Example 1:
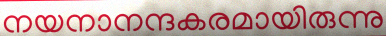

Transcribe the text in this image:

നയനാനന്ദകരമായിരുന്നു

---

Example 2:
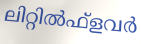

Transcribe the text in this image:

ലിറ്റിൽഫ്ളവർ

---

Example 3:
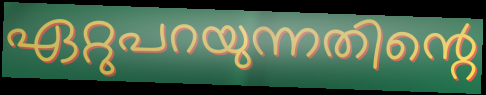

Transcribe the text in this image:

ഏറ്റുപറയുന്നതിന്റെ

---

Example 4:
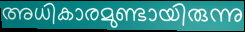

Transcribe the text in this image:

അധികാരമുണ്ടായിരുന്നു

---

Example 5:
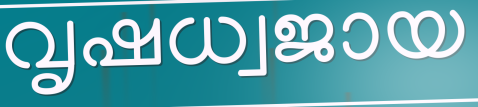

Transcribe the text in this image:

വൃഷധ്വജായ